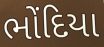
ભોંદિયા